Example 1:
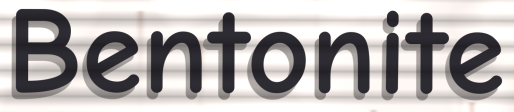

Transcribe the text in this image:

Bentonite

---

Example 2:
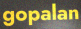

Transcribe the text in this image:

gopalan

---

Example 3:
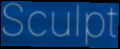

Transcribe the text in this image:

Sculpt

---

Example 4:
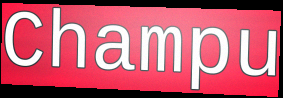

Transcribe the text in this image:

Champu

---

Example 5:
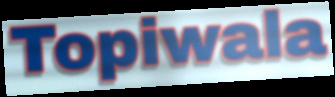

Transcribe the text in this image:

Topiwala